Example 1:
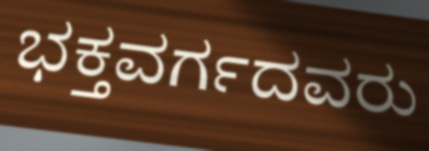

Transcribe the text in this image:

ಭಕ್ತವರ್ಗದವರು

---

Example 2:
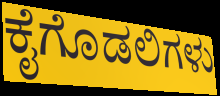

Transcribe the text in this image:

ಕೈಗೊಡಲಿಗಳು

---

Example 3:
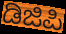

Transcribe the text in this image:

ಡಿಜಿಪಿ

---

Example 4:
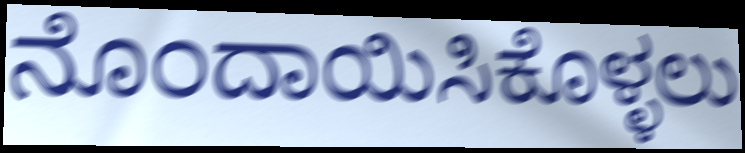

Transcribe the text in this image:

ನೊಂದಾಯಿಸಿಕೊಳ್ಳಲು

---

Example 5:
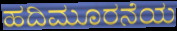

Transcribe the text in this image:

ಹದಿಮೂರನೆಯ